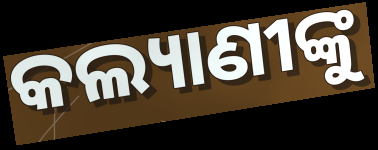
କଲ୍ୟାଣୀଙ୍କୁ